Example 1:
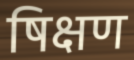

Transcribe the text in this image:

षिक्षण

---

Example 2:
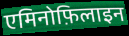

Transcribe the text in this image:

एमिनोफ़िलाइन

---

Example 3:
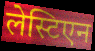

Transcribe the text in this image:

लेस्टिएन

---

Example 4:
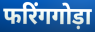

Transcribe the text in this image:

फरिंगगोड़ा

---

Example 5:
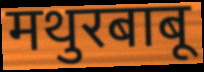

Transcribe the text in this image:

मथुरबाबू